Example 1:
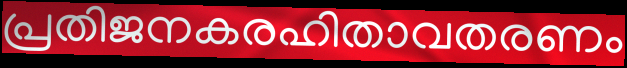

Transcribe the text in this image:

പ്രതിജനകരഹിതാവതരണം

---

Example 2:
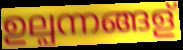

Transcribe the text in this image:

ഉല്പന്നങ്ങള്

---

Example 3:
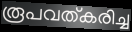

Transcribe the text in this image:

രൂപവത്കരിച്ച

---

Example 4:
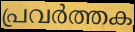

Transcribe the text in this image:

പ്രവർത്തക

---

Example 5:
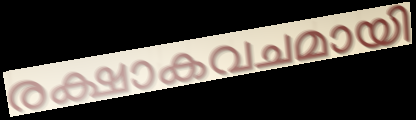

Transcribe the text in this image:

രക്ഷാകവചമായി